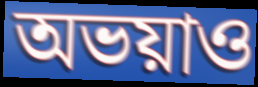
অভয়াও